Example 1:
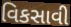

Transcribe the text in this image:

વિકસાવી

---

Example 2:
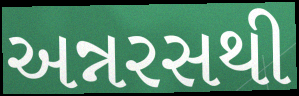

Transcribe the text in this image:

અન્નરસથી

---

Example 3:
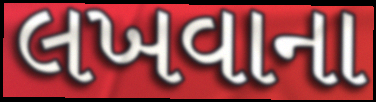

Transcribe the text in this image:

લખવાના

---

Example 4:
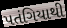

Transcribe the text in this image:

પતંગિયાથી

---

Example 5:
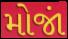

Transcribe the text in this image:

મોજાં